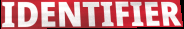
IDENTIFIER